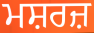
ਮਸ਼ਰਜ਼